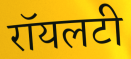
रॉयलटी